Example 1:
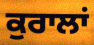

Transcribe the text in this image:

ਕੁਰਾਲਾਂ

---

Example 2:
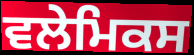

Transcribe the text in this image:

ਵਲੇਮਿਕਸ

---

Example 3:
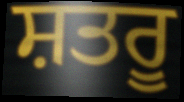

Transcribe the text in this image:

ਸ਼ਤਰੂ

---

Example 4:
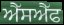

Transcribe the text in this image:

ਐੱਸਐੱਫ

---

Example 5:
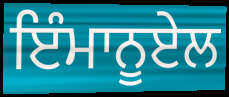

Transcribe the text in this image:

ਇੰਮਾਨੂਏਲ